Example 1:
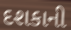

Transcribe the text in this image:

દશકાની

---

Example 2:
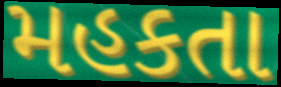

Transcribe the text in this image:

મહકતા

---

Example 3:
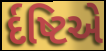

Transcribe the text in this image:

ર્દષ્ટિએ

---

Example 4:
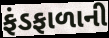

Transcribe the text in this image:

ફંડફાળાની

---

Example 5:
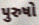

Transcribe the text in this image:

પુરુષો